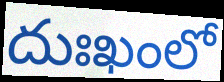
దుఃఖంలో